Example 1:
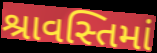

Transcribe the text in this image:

શ્રાવસ્તિમાં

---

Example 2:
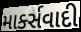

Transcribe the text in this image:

માર્ક્સવાદી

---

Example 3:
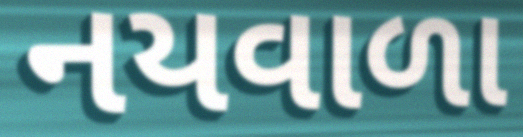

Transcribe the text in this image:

નયવાળા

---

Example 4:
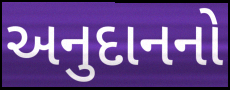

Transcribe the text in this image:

અનુદાનનો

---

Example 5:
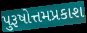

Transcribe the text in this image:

પુરૂષોત્તમપ્રકાશ